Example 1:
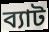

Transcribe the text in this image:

ব্যাট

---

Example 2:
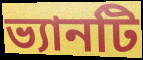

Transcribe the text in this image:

ভ্যানটি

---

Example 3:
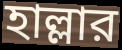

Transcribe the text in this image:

হাল্লার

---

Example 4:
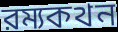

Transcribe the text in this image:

রম্যকথন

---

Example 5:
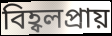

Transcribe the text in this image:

বিহ্বলপ্রায়